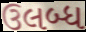
ઉલબ્ધ